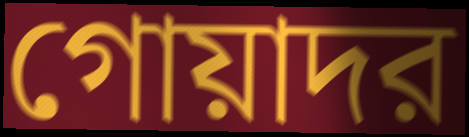
গোয়াদর